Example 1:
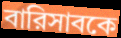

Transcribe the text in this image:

বারিসাবকে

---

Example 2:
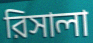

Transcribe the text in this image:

রিসালা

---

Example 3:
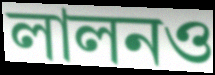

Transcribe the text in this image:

লালনও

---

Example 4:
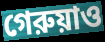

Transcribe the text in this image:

গেরুয়াও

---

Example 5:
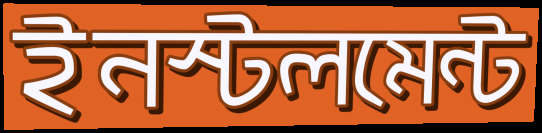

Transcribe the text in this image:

ইনস্টলমেন্ট